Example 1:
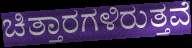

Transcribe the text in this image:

ಚಿತ್ತಾರಗಳಿರುತ್ತವೆ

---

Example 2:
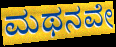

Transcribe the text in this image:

ಮಥನವೇ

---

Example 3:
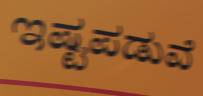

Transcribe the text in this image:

ಇಷ್ಟಪಡುವೆ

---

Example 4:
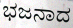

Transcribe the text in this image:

ಭಜನಾದ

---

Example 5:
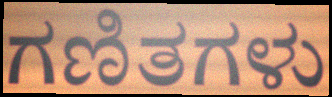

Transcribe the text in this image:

ಗಣಿತಗಳು